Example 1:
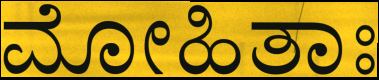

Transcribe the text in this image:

ಮೋಹಿತಾಃ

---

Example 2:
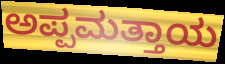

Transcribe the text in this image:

ಅಪ್ಪಮತ್ತಾಯ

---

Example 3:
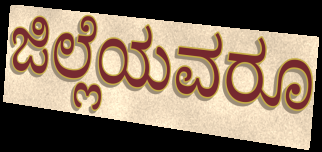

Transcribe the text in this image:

ಜಿಲ್ಲೆಯವರೂ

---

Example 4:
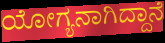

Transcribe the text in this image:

ಯೋಗ್ಯನಾಗಿದ್ದಾನೆ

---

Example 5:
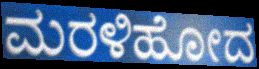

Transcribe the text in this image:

ಮರಳಿಹೋದ